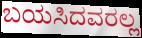
ಬಯಸಿದವರಲ್ಲ